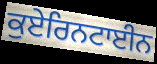
ਕੁਏਰਿਨਟਾਈਨ